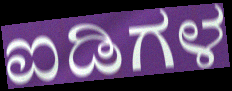
ಐಡಿಗಳ